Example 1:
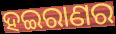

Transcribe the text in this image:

ହଇରାଣର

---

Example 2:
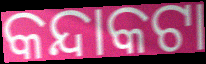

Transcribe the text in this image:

କନ୍ଦାକଟା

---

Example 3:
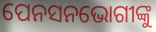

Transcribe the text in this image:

ପେନସନଭୋଗୀଙ୍କୁ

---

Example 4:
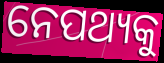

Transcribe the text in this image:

ନେପଥ୍ୟକୁ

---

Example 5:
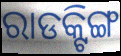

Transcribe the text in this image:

ରାଡକ୍ଟିଙ୍ଗ